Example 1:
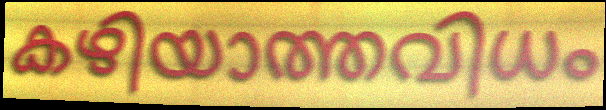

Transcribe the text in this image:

കഴിയാത്തവിധം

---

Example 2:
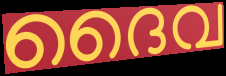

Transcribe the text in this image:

ദൈവ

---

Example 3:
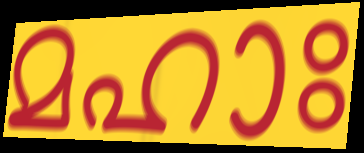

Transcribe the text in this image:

മഹാഃ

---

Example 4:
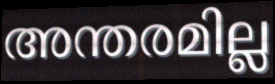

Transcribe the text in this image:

അന്തരമില്ല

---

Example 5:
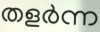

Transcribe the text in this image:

തളർന്ന